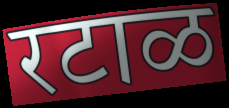
रटाळ